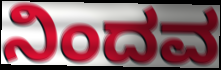
ನಿಂದವ